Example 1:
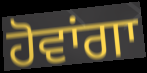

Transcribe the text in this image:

ਹੋਵਾਂਗਾ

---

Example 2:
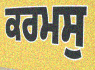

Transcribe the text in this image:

ਕਰਮਸੁ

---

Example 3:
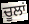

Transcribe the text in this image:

ਚੂਲਾਂ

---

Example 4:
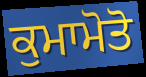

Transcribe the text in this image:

ਕੁਮਾਮੋਤੋ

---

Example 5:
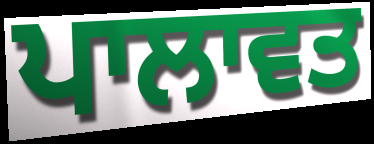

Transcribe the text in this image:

ਪਾਲਾਵਤ